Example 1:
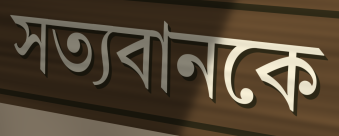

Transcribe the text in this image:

সত্যবানকে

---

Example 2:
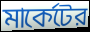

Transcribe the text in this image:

মার্কেটের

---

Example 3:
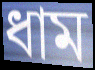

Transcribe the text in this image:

ধাম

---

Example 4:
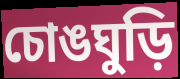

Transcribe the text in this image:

চোঙঘুড়ি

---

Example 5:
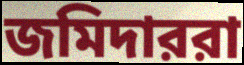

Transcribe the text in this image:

জমিদাররা